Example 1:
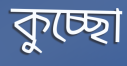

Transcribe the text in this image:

কুচ্ছো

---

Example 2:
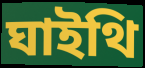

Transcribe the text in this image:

ঘাইথি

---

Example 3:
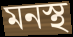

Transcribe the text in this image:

মনস্থ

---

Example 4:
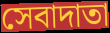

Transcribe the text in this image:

সেবাদাতা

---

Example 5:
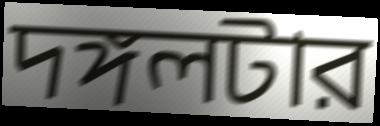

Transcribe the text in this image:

দঙ্গলটার